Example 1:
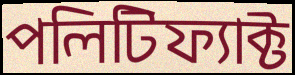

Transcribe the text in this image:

পলিটিফ্যাক্ট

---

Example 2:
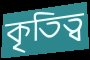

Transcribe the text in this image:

কৃতিত্ব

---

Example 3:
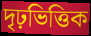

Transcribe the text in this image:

দৃঢ়ভিত্তিক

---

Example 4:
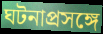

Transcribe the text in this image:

ঘটনাপ্রসঙ্গে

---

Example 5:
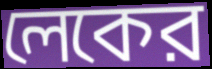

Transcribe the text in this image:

লেকের